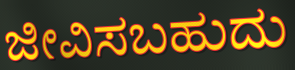
ಜೀವಿಸಬಹುದು